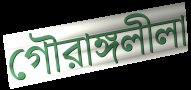
গৌরাঙ্গলীলা